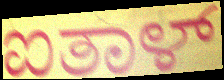
ಐತಾಳ್